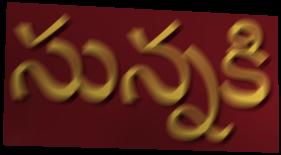
సున్నకి